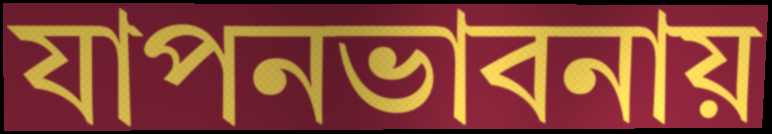
যাপনভাবনায়